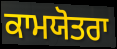
ਕਾਮਯੋਤਰਾ